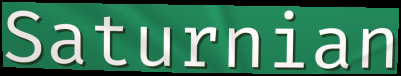
Saturnian